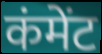
कंमेंट